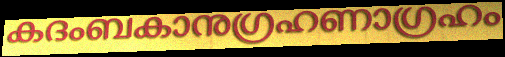
കദംബകാനുഗ്രഹണാഗ്രഹം